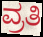
ವ್ರತಿ